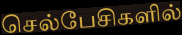
செல்பேசிகளில்